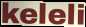
keleli